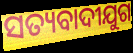
ସତ୍ୟବାଦୀଯୁଗ